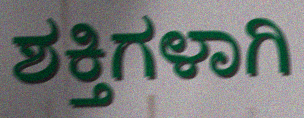
ಶಕ್ತಿಗಳಾಗಿ